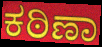
ಕಠಿಣಾ